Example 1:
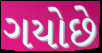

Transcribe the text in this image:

ગયોછે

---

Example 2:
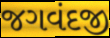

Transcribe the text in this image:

જગવંદજી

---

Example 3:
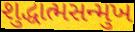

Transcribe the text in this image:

શુદ્ધાત્મસન્મુખ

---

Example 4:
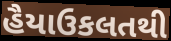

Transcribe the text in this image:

હૈયાઉકલતથી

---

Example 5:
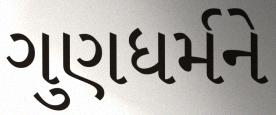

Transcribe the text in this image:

ગુણધર્મને